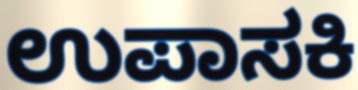
ಉಪಾಸಕಿ